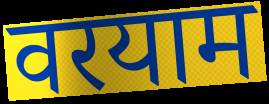
वरयाम